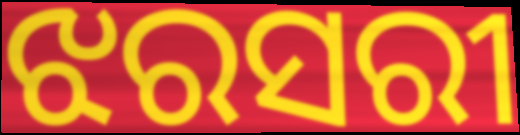
ଝରସରୀ